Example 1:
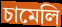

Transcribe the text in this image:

চামেলি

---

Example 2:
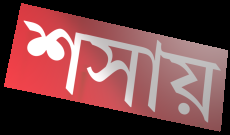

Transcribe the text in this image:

শসায়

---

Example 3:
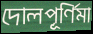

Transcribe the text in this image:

দোলপূর্ণিমা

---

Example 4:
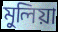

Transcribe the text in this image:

মুলিয়া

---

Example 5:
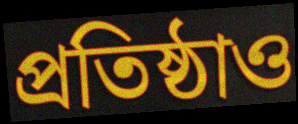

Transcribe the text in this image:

প্রতিষ্ঠাও